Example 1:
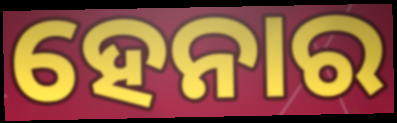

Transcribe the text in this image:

ହେନାର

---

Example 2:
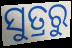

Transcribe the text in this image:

ସୁତ୍ରରୁ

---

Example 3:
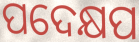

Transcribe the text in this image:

ପଦେକ୍ଷପ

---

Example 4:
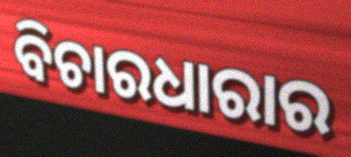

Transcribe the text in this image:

ବିଚାରଧାରାର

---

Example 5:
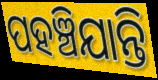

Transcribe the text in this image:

ପହଞ୍ଚିଯାନ୍ତି